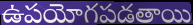
ఉపయోగపడతాయి